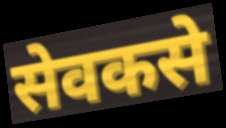
सेवकसे